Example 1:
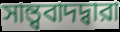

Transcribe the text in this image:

সান্ত্ববাদদ্বারা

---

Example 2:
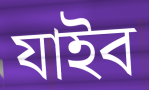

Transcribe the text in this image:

যাইব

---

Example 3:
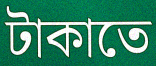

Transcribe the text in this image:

টাকাতে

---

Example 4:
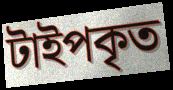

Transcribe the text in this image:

টাইপকৃত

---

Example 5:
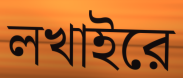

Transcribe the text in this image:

লখাইরে